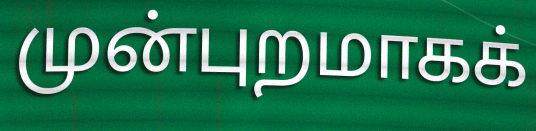
முன்புறமாகக்